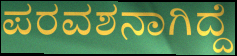
ಪರವಶನಾಗಿದ್ದೆ